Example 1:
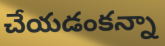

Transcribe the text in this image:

చేయడంకన్నా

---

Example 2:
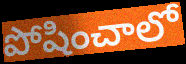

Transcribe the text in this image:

పోషించాలో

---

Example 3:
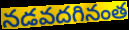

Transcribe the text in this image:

నడవదగినంత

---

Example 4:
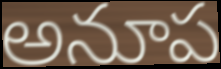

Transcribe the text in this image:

అనూప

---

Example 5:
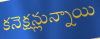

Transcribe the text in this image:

కనెక్షన్లున్నాయి